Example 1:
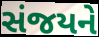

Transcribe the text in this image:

સંજયને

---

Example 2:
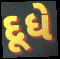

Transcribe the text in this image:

દૂધે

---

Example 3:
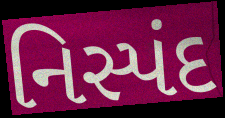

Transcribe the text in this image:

નિસ્પંદ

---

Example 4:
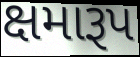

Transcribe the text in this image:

ક્ષમારૂપ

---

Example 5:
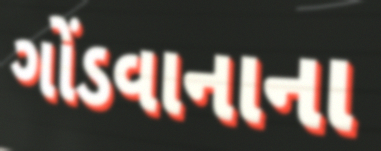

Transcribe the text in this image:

ગોંડવાનાના